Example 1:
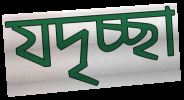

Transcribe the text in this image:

যদৃচ্ছা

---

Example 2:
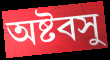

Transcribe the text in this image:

অষ্টবসু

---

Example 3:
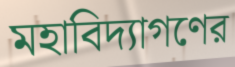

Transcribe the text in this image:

মহাবিদ্যাগণের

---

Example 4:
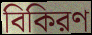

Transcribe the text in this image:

বিকিরণ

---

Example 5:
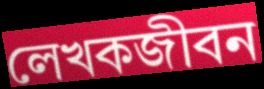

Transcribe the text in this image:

লেখকজীবন